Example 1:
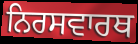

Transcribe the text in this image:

ਨਿਰਸਵਾਰਥ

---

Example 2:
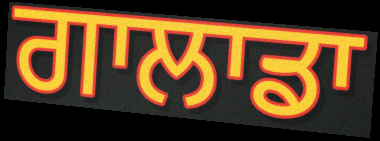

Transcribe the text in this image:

ਗਾਲਾਡਾ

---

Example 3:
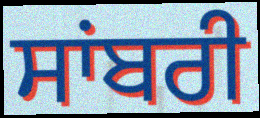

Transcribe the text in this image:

ਸਾਂਬਰੀ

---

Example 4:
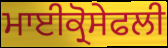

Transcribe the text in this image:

ਮਾਈਕ੍ਰੋਸੇਫਲੀ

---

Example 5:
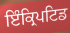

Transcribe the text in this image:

ਇੰਕ੍ਰਿਪਟਿਡ